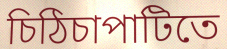
চিঠিচাপাটিতে